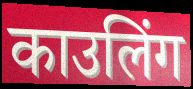
काउलिंग